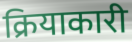
क्रियाकारी